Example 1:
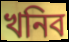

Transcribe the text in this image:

খনিব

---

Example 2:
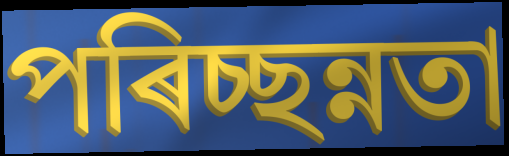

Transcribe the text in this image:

পৰিচ্ছন্নতা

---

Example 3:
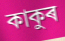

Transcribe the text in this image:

কাকুৰ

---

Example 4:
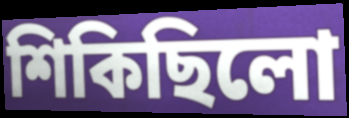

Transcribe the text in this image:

শিকিছিলো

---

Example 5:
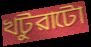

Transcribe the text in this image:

খটুৱাটো